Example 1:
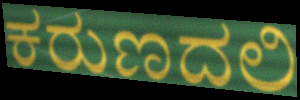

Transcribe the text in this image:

ಕರುಣದಲಿ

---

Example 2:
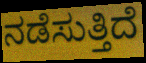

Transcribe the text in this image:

ನಡೆಸುತ್ತಿದೆ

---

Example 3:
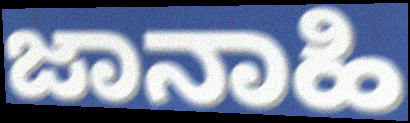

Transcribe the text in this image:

ಜಾನಾಹಿ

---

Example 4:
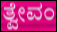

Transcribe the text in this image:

ತ್ವೇವಂ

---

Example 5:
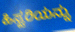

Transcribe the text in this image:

ಹಿಸ್ಟರಿಯನ್ನು